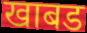
खाबड